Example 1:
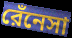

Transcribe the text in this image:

রেঁনেসা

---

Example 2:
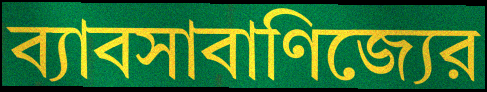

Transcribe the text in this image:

ব্যাবসাবাণিজ্যের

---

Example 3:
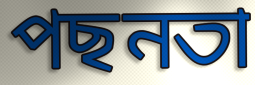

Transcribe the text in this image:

পছনতা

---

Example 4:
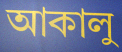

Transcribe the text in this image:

আকালু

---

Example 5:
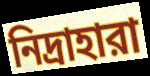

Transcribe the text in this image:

নিদ্রাহারা